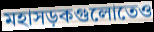
মহাসড়কগুলোতেও